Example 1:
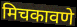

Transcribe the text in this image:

मिचकावणे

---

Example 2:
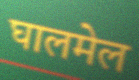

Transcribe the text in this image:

घालमेल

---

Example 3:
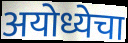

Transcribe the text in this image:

अयोध्येचा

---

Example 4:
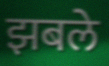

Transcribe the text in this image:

झबले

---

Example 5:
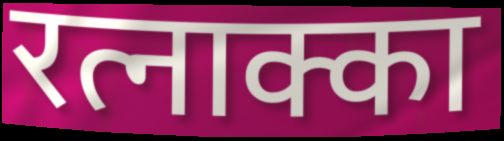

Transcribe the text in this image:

रत्नाक्का